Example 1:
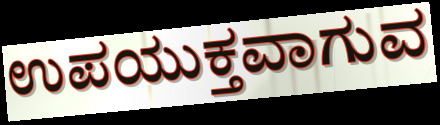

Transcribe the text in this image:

ಉಪಯುಕ್ತವಾಗುವ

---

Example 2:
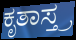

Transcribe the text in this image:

ಕೃತಾಸ್ತ್ರ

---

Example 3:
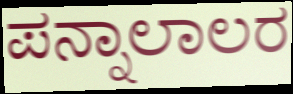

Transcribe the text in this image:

ಪನ್ನಾಲಾಲರ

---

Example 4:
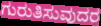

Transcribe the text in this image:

ಗುರುತಿಸುವುದರ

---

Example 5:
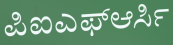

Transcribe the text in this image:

ಪಿಐಎಫ್ಆರ್ಸಿ